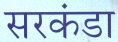
सरकंडा